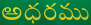
అధరము